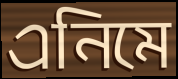
এনিমে